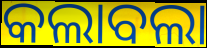
କଲାବଲା